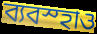
ব্যবস্হাও